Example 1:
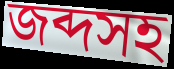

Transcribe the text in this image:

জব্দসহ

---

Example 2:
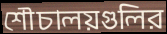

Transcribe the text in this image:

শৌচালয়গুলির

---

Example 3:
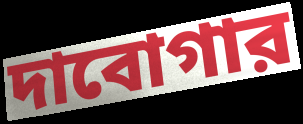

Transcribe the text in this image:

দাবোগার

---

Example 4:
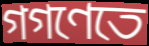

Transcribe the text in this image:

গগণেতে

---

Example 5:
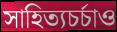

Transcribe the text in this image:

সাহিত্যচর্চাও